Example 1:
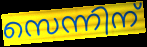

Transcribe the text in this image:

സെന്നിന്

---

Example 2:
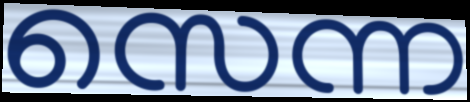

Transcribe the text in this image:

സെന്ന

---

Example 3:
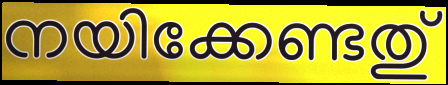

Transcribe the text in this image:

നയിക്കേണ്ടതു്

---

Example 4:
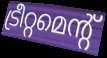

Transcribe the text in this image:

ട്രീറ്റമെന്റ്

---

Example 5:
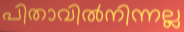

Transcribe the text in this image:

പിതാവിൽനിന്നല്ല